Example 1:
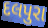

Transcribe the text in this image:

દલપુરા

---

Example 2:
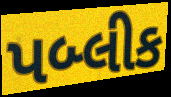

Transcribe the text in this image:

પબ્લીક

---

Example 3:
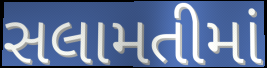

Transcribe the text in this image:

સલામતીમાં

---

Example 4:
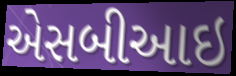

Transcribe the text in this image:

એસબીઆઇ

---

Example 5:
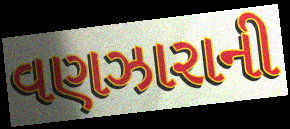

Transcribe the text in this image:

વણઝારાની